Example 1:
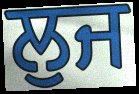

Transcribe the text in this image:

ਲੁਜ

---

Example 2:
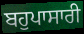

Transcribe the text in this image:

ਬਹੁਪਾਸਾਰੀ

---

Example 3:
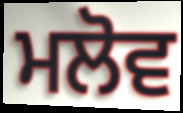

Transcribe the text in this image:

ਮਲੋਵ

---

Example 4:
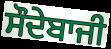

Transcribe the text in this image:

ਸੌਦੇਬਾਜੀ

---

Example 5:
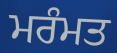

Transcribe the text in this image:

ਮਰੰਮਤ